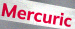
Mercuric